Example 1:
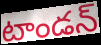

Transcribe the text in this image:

టాండన్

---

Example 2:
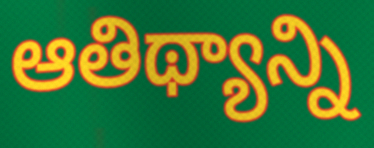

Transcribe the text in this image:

ఆతిథ్యాన్ని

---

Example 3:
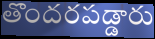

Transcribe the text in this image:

తొందరపడ్డారు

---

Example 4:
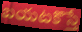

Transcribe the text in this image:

బయటకొస్తే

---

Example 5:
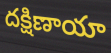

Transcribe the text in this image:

దక్షిణాయా